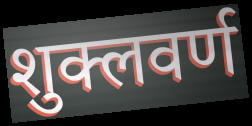
शुक्लवर्ण